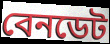
বেনডেট